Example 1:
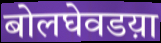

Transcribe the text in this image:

बोलघेवडय़ा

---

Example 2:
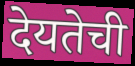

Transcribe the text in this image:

देयतेची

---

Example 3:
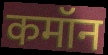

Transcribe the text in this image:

कमॉन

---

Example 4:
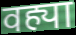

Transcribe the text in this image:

वह्या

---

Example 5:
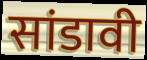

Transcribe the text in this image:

सांडावी